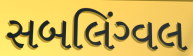
સબલિંગ્વલ